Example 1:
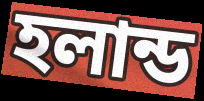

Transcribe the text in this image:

হলান্ড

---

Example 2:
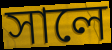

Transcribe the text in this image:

সালে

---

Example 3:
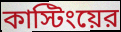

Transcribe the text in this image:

কাস্টিংয়ের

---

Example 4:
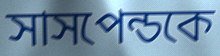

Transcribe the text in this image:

সাসপেন্ডকে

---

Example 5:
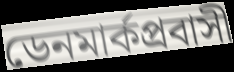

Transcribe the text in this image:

ডেনমার্কপ্রবাসী